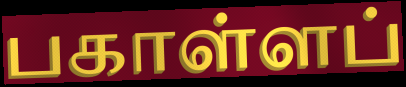
பகாள்ளப்